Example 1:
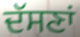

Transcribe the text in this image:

ਦੱਸਣਾਂ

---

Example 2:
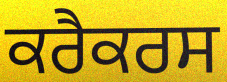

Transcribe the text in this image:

ਕਰੈਕਰਸ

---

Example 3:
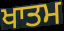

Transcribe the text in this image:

ਖਾਤਮ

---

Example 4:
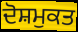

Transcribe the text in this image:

ਦੋਸ਼ਮੁਕਤ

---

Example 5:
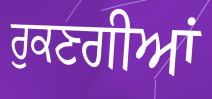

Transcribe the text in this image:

ਰੁਕਣਗੀਆਂ